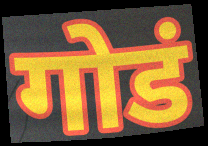
गोडं